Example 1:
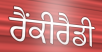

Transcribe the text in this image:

ਰੈਂਕੀਰੈਡੀ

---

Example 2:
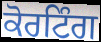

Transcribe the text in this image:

ਕੋਰਟਿੰਗ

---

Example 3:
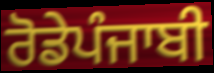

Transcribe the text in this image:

ਰੋਡੇਪੰਜਾਬੀ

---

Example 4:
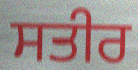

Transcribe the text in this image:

ਸਤੀਰ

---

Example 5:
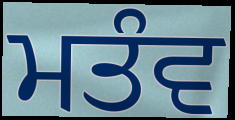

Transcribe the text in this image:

ਮਤੰਵ